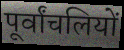
पूर्वांचलियों